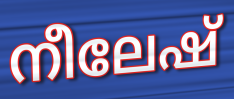
നീലേഷ്